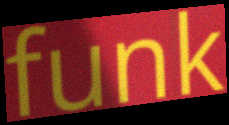
funk